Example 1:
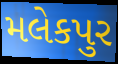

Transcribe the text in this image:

મલેકપુર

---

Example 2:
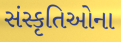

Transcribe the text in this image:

સંસ્કૃતિઓના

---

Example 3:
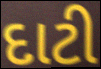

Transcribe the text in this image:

દાટી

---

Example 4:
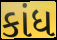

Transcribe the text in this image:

કાંધ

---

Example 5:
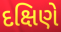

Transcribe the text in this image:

દક્ષિણે